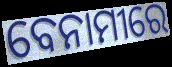
ବେନାମୀରେ